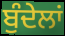
ਬੁੰਦੇਲਾਂ